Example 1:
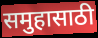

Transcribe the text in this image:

समुहासाठी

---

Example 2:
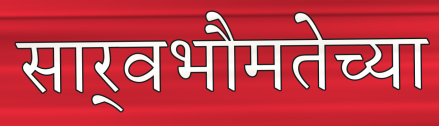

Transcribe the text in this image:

सार्वभौमतेच्या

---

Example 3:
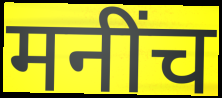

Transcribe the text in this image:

मनींच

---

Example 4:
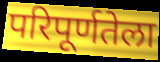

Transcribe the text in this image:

परिपूर्णतेला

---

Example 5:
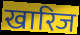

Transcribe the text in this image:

खारिज